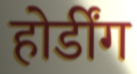
होर्डींग